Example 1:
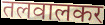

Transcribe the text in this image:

तलवालकर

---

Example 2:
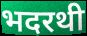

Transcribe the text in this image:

भदरथी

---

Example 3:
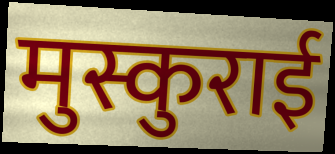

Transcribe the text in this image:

मुस्कुराई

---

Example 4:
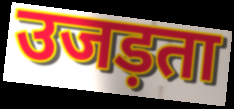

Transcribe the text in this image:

उजड़ता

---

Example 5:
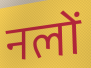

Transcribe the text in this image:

नलों